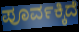
ಪೂರ್ವಕ್ಕಿದೆ